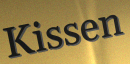
Kissen